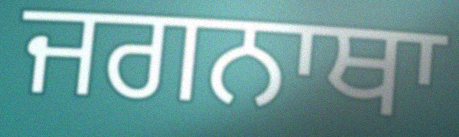
ਜਗਨਾਥਾ